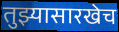
तुझ्यासारखेच